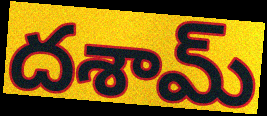
దశామ్